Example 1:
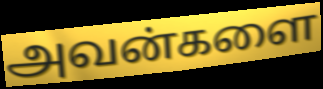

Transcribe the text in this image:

அவன்களை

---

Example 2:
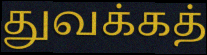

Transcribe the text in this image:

துவக்கத்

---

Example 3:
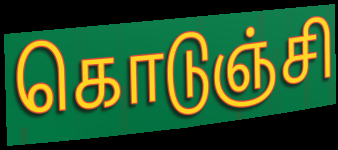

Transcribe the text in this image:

கொடுஞ்சி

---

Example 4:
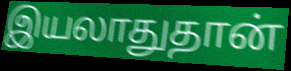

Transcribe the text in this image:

இயலாதுதான்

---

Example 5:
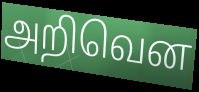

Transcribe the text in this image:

அறிவென